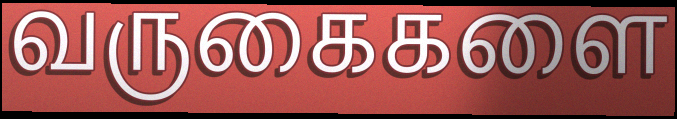
வருகைகளை